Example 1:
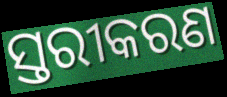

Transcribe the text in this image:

ସ୍ତରୀକରଣ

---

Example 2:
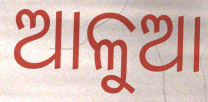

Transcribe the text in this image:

ଆଳୁଆ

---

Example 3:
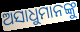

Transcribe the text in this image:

ଅସାଧୁମାନଙ୍କୁ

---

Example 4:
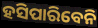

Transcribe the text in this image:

ହସିପାରିବେନି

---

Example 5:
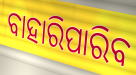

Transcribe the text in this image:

ବାହାରିପାରିବ